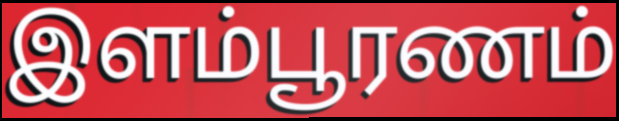
இளம்பூரணம்